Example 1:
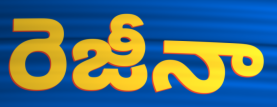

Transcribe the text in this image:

రెజీనా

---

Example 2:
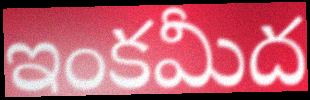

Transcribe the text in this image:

ఇంకమీద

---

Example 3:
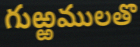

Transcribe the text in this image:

గుఱ్ఱములతొ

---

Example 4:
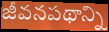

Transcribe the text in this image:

జీవనపథాన్ని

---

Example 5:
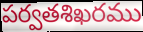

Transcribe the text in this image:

పర్వతశిఖరము